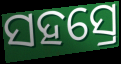
ସହସ୍ରେ